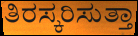
ತಿರಸ್ಕರಿಸುತ್ತಾ